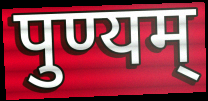
पुण्यम्